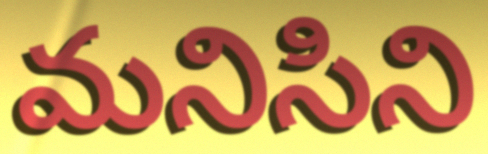
మనిసిని